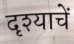
दृश्याचें